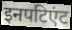
इनपटिएंट